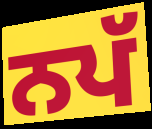
ਨਪੱ